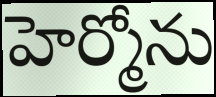
హెర్మోను